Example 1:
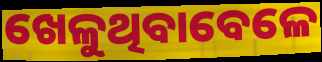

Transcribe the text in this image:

ଖେଳୁଥିବାବେଳେ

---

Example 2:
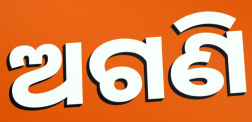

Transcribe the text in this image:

ଅଗଣି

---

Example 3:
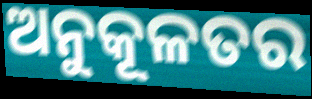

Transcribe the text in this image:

ଅନୁକୂଳତର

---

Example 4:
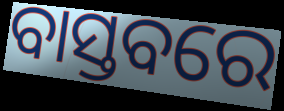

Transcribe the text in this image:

ବାସ୍ତବରେ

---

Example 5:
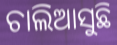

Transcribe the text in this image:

ଚାଲିଆସୁଛି